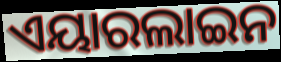
ଏୟାରଲାଇନ